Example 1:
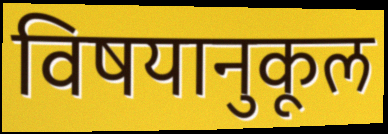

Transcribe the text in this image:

विषयानुकूल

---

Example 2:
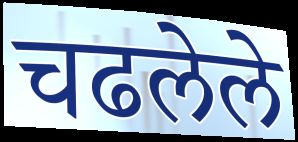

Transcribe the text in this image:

चढलेले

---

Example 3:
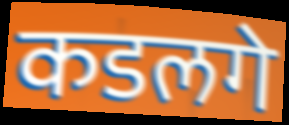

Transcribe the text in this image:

कडलगे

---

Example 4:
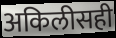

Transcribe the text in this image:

अकिलीसही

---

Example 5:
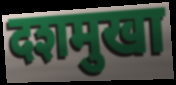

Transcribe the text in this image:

दशमुखा